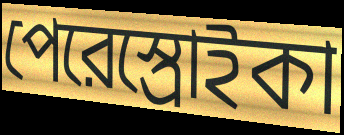
পেরেস্ত্রোইকা